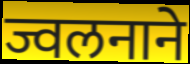
ज्वलनाने